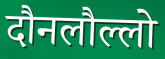
दौनलौल्लो